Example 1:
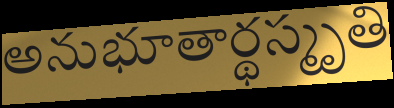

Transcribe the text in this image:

అనుభూతార్థస్మృతి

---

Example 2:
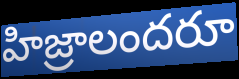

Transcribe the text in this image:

హిజ్రాలందరూ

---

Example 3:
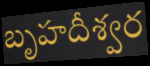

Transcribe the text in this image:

బృహదీశ్వర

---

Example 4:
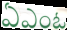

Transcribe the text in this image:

ఏఎంఓ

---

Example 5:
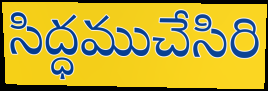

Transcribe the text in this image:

సిద్ధముచేసిరి